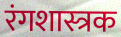
रंगशास्त्रक